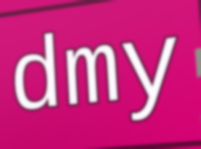
dmy